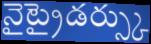
నైట్రైడర్స్కు